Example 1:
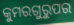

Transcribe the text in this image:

କୁମରଗୁରୁପର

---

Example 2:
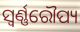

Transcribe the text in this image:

ସ୍ୱର୍ଣ୍ଣରୌପ୍ୟ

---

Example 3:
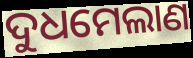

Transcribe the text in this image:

ଦୁଧମେଲାଣ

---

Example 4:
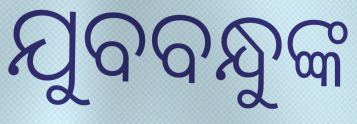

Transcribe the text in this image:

ଯୁବବନ୍ଧୁଙ୍କ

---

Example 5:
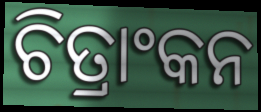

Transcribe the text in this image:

ଚିତ୍ରାଂକନ